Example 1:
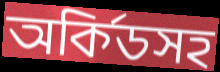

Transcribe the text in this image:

অর্কিডসহ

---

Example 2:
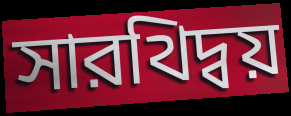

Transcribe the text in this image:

সারথিদ্বয়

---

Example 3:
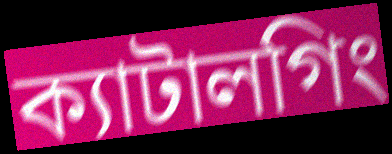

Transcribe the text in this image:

ক্যাটালগিং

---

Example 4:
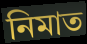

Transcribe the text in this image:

নিমাত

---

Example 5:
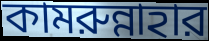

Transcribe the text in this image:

কামরুন্নাহার